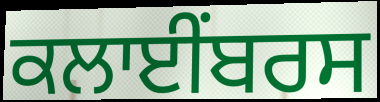
ਕਲਾਈਂਬਰਸ